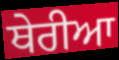
ਥੇਰੀਆ